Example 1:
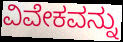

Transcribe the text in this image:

ವಿವೇಕವನ್ನು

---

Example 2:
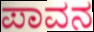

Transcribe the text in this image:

ಪಾವನ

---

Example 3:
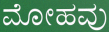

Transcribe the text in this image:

ಮೋಹವು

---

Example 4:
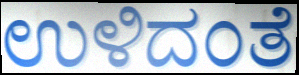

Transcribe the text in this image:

ಉಳಿದಂತೆ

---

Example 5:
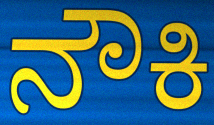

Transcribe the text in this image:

ನೌಕಿ